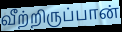
வீற்றிருப்பான்